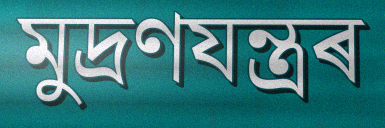
মুদ্ৰণযন্ত্ৰৰ